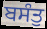
ਬਸੰਤੁ